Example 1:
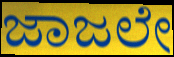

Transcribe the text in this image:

ಜಾಜಲೇ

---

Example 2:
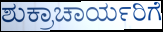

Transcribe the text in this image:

ಶುಕ್ರಾಚಾರ್ಯರಿಗೆ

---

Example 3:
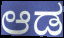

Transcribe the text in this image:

ಆಡ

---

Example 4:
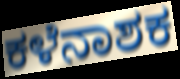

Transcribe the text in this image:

ಕಳೆನಾಶಕ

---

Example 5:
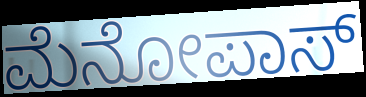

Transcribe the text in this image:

ಮೆನೋಪಾಸ್